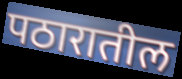
पठारातील